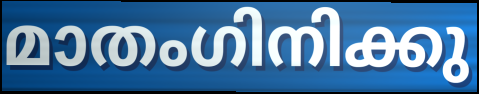
മാതംഗിനിക്കു